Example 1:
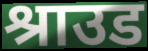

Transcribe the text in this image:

श्राउड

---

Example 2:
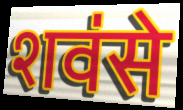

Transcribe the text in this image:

शव॑से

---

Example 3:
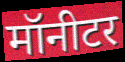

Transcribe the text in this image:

मॉनीटर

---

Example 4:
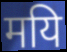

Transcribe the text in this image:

मयि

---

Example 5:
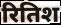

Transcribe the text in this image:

रितिश